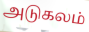
அடுகலம்